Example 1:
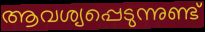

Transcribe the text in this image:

ആവശ്യപ്പെടുന്നുണ്ട്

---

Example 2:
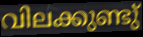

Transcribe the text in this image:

വിലക്കുണ്ടു്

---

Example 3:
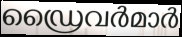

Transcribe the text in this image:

ഡ്രൈവർമാർ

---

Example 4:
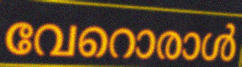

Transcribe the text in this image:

വേറൊരാൾ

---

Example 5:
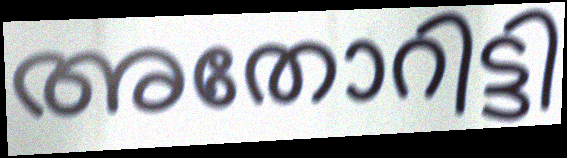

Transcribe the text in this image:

അതോറിട്ടി